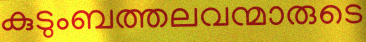
കുടുംബത്തലവന്മാരുടെ